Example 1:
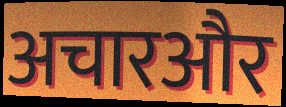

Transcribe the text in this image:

अचारऔर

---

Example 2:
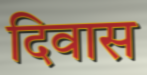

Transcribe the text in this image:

दिवास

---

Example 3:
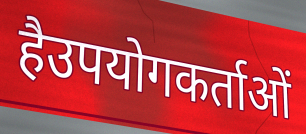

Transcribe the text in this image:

हैउपयोगकर्ताओं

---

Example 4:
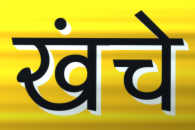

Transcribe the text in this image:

खंचे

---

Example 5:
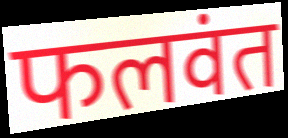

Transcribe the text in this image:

फलवंत